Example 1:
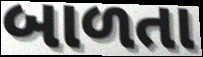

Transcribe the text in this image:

બાળતા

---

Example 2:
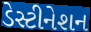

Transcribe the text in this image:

ડેસ્ટીનેશન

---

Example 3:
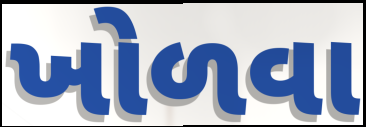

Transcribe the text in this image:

ખોળવા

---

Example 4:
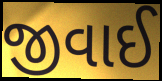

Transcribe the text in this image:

જીવાઈ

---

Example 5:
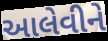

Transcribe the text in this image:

આલેવીને